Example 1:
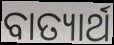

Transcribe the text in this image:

ବାତ୍ୟାର୍ଥ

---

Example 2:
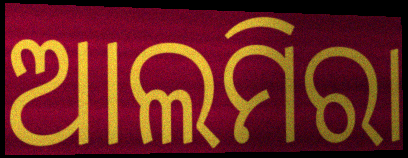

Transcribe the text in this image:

ଆଲମିରା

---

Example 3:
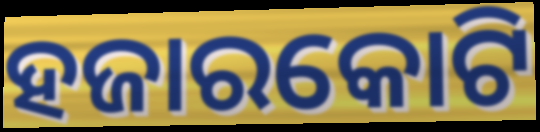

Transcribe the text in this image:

ହଜାରକୋଟି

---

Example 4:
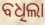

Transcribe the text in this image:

ବଧିଲା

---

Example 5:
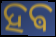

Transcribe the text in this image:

ହଵ